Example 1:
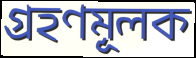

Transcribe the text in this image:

গ্রহণমূলক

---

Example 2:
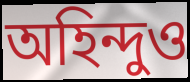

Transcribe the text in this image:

অহিন্দুও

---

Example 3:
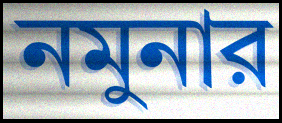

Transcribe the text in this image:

নমুনার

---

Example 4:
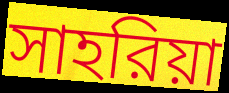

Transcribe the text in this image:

সাহরিয়া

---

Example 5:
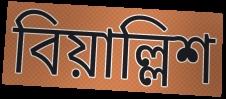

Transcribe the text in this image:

বিয়াল্লিশ